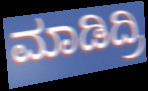
ಮಾಡಿದ್ರಿ